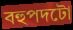
বহুপদটো